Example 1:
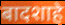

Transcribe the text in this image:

बादशाहे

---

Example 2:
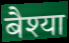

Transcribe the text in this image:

बैश्या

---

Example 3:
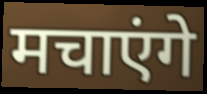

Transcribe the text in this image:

मचाएंगे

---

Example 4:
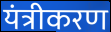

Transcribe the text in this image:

यंत्रीकरण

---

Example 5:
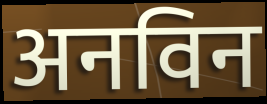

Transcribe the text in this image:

अनविन